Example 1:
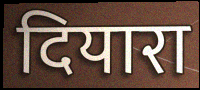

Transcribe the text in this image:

दियारा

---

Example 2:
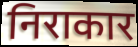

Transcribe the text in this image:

निराकार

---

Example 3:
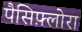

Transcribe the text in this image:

पैसिफ़्लोरा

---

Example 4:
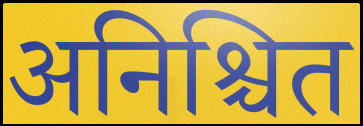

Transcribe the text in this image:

अनिश्चित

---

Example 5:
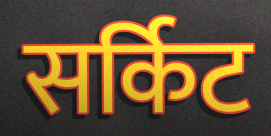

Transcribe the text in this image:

सर्किट